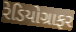
રેડિયોગ્રાફર